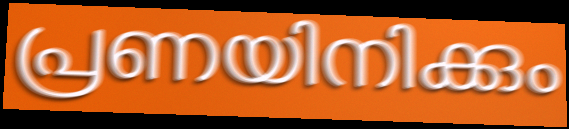
പ്രണയിനിക്കും